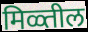
मिळ्तील